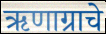
ऋणाग्राचे